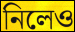
নিলেও